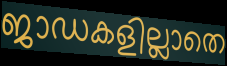
ജാഡകളില്ലാതെ